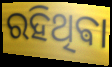
ରହିଥିଵା